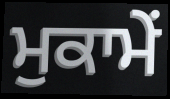
ਮੁਕਾਮੇਂ